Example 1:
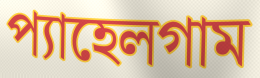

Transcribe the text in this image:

প্যাহেলগাম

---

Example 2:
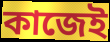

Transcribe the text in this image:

কাজেই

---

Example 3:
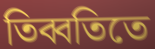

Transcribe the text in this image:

তিব্বতিতে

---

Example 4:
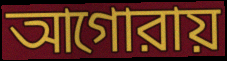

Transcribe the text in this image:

আগোরায়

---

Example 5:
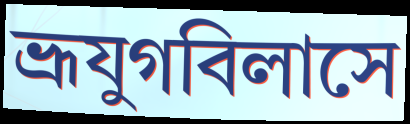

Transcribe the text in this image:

ভ্রূযুগবিলাসে